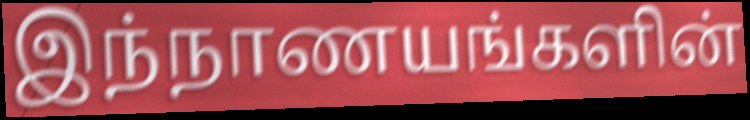
இந்நாணயங்களின்